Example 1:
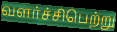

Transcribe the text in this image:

வளர்ச்சிபெற்று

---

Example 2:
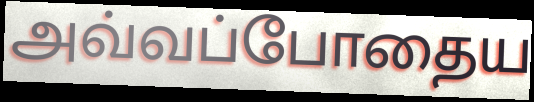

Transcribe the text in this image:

அவ்வப்போதைய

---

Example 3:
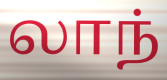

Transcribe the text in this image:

லாந்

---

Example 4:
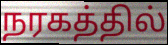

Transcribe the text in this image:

நரகத்தில்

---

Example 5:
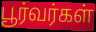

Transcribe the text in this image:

பூர்வர்கள்